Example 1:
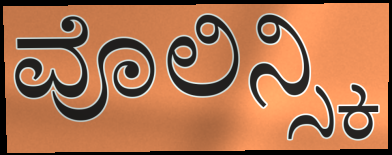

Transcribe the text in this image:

ವೊಲಿನ್ಸ್ಕಿ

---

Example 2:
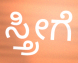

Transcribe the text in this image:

ಸ್ತ್ರೀಗೆ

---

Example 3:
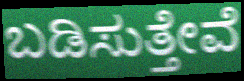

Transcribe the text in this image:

ಬಡಿಸುತ್ತೇವೆ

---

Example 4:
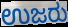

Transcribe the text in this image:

ಉಜರು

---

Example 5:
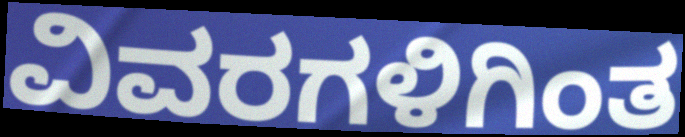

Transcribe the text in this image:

ವಿವರಗಳಿಗಿಂತ